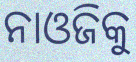
ନାଓଜିକୁ